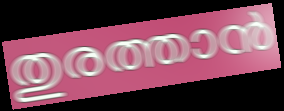
തുരത്താൻ